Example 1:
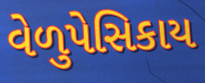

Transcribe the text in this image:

વેળુપેસિકાય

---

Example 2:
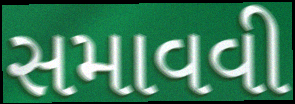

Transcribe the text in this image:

સમાવવી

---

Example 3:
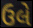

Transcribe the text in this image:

ઉલે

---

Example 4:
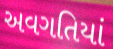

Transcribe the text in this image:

અવગતિયાં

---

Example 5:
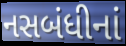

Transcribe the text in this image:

નસબંધીનાં